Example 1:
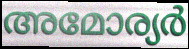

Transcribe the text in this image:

അമോര്യർ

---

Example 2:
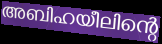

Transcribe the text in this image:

അബിഹയീലിന്റെ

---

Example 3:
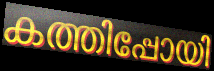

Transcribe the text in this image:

കത്തിപ്പോയി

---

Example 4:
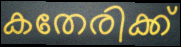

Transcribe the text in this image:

കതേരിക്ക്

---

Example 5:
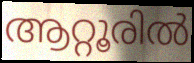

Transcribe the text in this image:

ആറ്റൂരിൽ